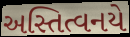
અસ્તિત્વનયે